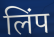
लिंप